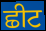
ਛੀਟ